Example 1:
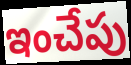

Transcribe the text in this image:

ఇంచేపు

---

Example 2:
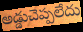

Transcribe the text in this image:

అడ్డుచెప్పలేదు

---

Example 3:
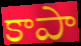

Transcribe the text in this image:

కాపా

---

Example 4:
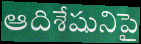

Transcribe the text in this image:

ఆదిశేషునిపై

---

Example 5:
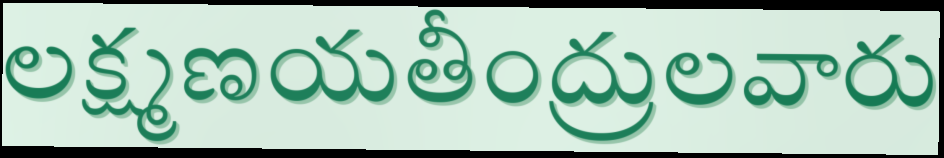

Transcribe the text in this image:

లక్ష్మణయతీంద్రులవారు